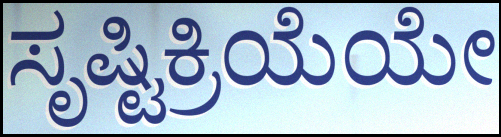
ಸೃಷ್ಟಿಕ್ರಿಯೆಯೇ